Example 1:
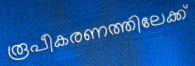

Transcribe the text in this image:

രൂപീകരണത്തിലേക്ക്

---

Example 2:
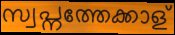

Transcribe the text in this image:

സ്വപ്നത്തേക്കാള്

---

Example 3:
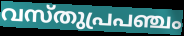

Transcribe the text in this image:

വസ്തുപ്രപഞ്ചം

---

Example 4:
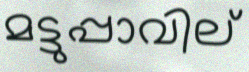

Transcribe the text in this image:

മട്ടുപ്പാവില്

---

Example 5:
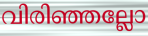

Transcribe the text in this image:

വിരിഞ്ഞല്ലോ